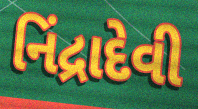
નિંદ્રાદેવી